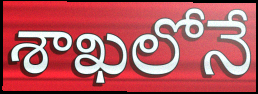
శాఖలోనే